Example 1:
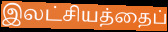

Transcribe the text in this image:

இலட்சியத்தைப்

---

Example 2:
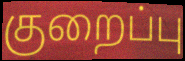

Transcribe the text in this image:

குறைப்பு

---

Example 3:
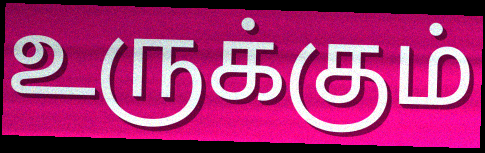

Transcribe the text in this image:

உருக்கும்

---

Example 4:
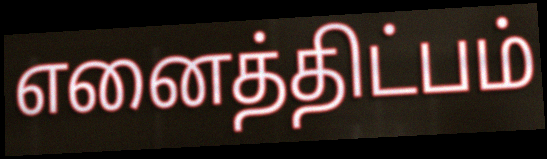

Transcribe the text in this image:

எனைத்திட்பம்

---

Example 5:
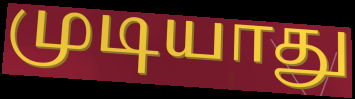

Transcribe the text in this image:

முடியாது